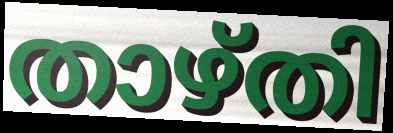
താഴ്തി